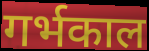
गर्भकाल